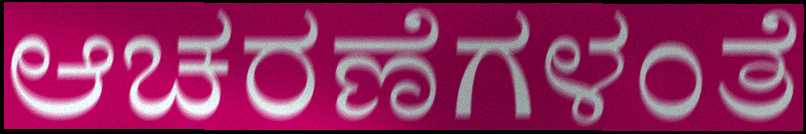
ಆಚರಣೆಗಳಂತೆ